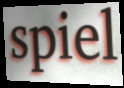
spiel